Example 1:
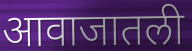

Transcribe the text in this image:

आवाजातली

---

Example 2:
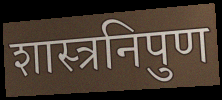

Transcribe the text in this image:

शास्त्रनिपुण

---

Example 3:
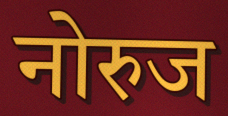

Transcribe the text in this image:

नोरुज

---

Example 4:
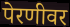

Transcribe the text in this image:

पेरणीवर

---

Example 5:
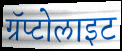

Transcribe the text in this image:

ग्रॅप्टोलाइट